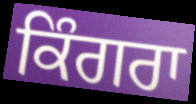
ਕਿੰਗਰਾ